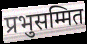
प्रभुसम्मित